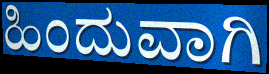
ಹಿಂದುವಾಗಿ